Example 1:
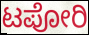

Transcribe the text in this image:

ಟಪೋರಿ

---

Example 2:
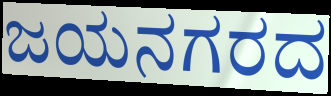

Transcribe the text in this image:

ಜಯನಗರದ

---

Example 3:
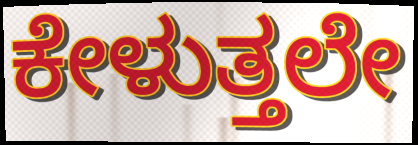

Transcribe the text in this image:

ಕೇಳುತ್ತಲೇ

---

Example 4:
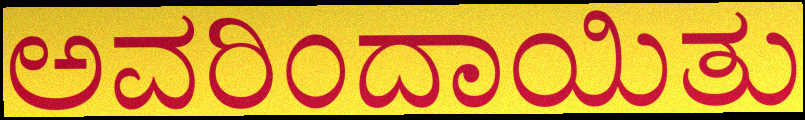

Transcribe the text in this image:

ಅವರಿಂದಾಯಿತು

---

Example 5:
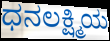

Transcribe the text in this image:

ಧನಲಕ್ಷ್ಮಿಯ